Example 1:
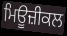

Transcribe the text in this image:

ਮਿਊਜ਼ੀਕਲ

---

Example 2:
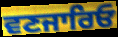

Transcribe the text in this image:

ਵਣਜਾਰਿਓ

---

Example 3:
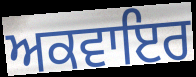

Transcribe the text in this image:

ਅਕਵਾਇਰ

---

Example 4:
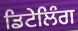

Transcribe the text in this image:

ਡਿਟੇਲਿੰਗ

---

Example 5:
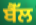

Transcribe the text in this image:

ਬੈੱਲ